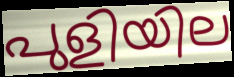
പുളിയില